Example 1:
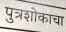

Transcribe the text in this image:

पुत्रशोकाचा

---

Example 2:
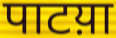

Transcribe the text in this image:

पाटय़ा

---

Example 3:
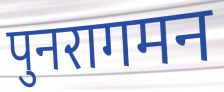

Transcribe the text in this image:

पुनरागमन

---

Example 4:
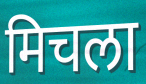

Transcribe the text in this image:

मिचला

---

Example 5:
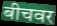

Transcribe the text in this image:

बीचवर